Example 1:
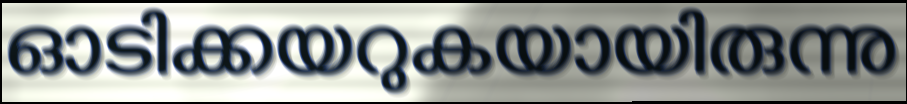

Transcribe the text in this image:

ഓടിക്കയറുകയായിരുന്നു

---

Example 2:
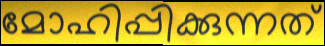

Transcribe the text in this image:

മോഹിപ്പിക്കുന്നത്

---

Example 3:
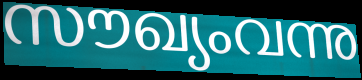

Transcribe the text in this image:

സൗഖ്യംവന്നു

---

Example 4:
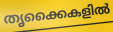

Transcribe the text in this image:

തൃക്കൈകളിൽ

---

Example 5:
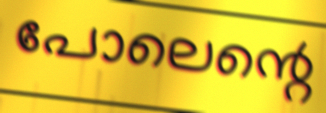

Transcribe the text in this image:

പോലെന്റെ